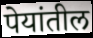
पेयांतील